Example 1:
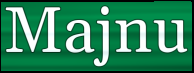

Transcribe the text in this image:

Majnu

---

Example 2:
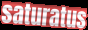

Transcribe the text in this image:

saturatus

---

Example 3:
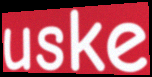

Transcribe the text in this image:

uske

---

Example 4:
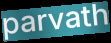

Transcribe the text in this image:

parvath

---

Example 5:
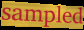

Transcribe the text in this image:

sampled